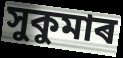
সুকুমাৰ